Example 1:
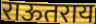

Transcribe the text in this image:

राऊतराय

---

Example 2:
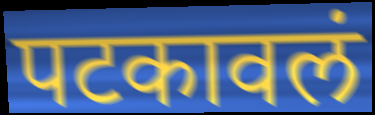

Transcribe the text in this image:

पटकावलं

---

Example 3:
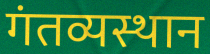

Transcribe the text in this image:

गंतव्यस्थान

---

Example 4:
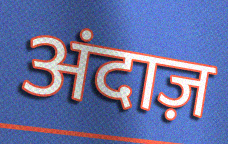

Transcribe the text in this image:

अंदाज़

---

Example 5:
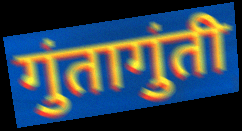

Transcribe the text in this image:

गुंतागुंती